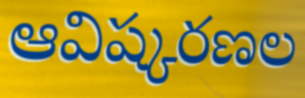
ఆవిష్కరణల